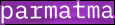
parmatma